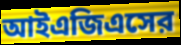
আইএজিএসের